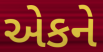
એકને